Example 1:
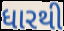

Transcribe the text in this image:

ધારથી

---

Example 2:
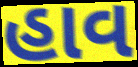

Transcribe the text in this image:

હાવ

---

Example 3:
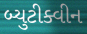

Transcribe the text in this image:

બ્યુટીક્વીન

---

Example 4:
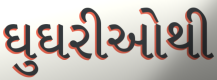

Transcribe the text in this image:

ઘુઘરીઓથી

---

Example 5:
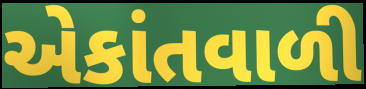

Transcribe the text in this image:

એકાંતવાળી